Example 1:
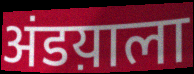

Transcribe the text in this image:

अंडय़ाला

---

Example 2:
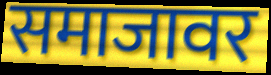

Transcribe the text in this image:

समाजावर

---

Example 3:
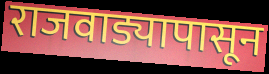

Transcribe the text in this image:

राजवाड्यापासून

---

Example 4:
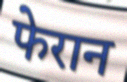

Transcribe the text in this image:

फेरान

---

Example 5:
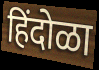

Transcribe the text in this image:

हिंदोळा